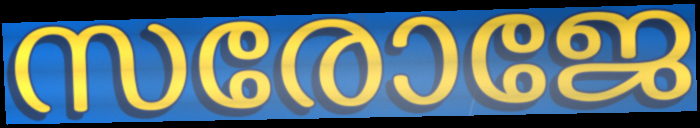
സരോജേ